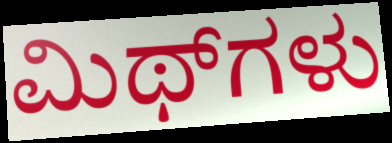
ಮಿಥ್‌ಗಳು